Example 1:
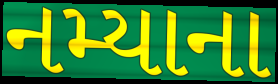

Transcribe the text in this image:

નમ્યાના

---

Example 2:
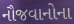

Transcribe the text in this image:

નૌજવાનોના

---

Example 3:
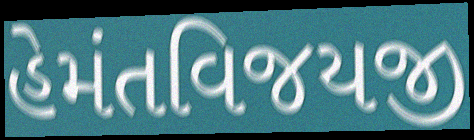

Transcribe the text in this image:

હેમંતવિજયજી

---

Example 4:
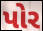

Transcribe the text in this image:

પોર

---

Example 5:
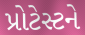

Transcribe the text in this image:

પ્રોટેસ્ટને